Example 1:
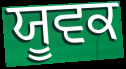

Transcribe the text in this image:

ਯੂਵਕ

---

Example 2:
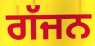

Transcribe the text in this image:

ਗੱਜਨ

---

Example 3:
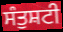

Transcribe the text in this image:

ਸੰਤੁਸ਼ਟੀ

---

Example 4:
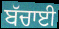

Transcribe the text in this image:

ਬੱਚਾਈ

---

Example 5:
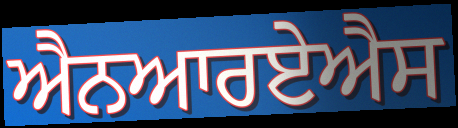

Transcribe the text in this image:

ਐਨਆਰਏਐਸ